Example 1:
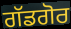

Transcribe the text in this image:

ਗੱਡਗੋਰ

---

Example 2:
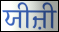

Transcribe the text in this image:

ਯੀਜ਼ੀ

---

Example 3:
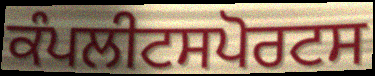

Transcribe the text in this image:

ਕੰਪਲੀਟਸਪੋਰਟਸ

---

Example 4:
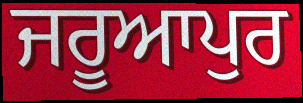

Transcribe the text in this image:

ਜਰੂਆਪੁਰ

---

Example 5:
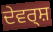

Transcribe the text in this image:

ਦੇਵਰ੍ਸ਼